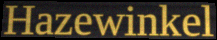
Hazewinkel